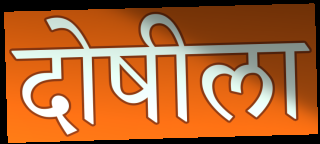
दोषीला